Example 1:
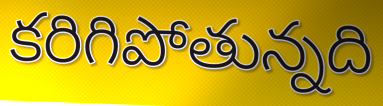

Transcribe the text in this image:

కరిగిపోతున్నది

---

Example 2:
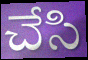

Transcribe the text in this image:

చేసి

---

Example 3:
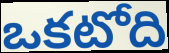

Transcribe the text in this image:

ఒకటోది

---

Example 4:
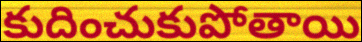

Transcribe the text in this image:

కుదించుకుపోతాయి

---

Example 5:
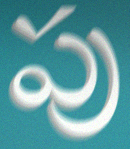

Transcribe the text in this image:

పు